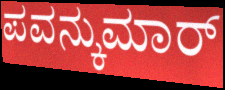
ಪವನ್ಕುಮಾರ್